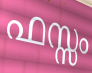
ഫസ്സം